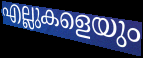
എല്ലുകളെയും